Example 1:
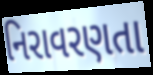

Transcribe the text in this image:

નિરાવરણતા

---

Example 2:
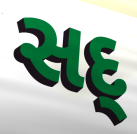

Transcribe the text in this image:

સદ્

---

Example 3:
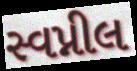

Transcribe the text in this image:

સ્વપ્નીલ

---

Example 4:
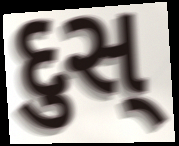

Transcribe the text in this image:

દુસ્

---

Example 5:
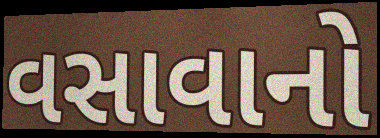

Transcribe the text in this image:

વસાવાનો